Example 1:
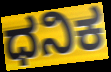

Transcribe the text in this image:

ಧನಿಕ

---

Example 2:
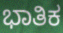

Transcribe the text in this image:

ಭಾತಿಕ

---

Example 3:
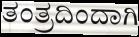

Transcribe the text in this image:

ತಂತ್ರದಿಂದಾಗಿ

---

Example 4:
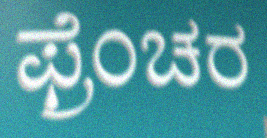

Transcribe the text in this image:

ಫ್ರೆಂಚರ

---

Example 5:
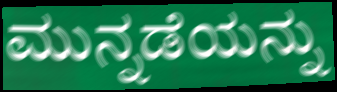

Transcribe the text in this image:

ಮುನ್ನಡೆಯನ್ನು